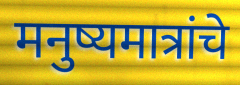
मनुष्यमात्रांचे